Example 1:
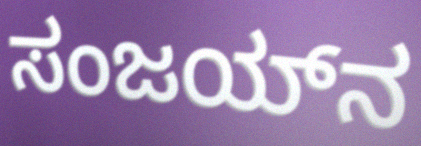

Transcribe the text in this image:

ಸಂಜಯ್‌ನ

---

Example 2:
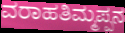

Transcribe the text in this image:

ವರಾಹತಿಮ್ಮಪ್ಪನ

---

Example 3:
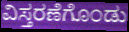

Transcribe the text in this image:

ವಿಸ್ತರಣೆಗೊಂಡು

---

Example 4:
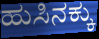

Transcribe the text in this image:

ಹುಸಿನಕ್ಕು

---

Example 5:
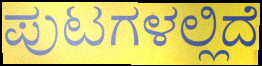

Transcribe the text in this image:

ಪುಟಗಳಲ್ಲಿದೆ